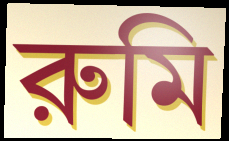
রুমি